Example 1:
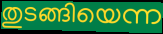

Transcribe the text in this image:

തുടങ്ങിയെന്ന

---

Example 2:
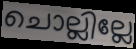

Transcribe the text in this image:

ചൊല്ലില്ലേ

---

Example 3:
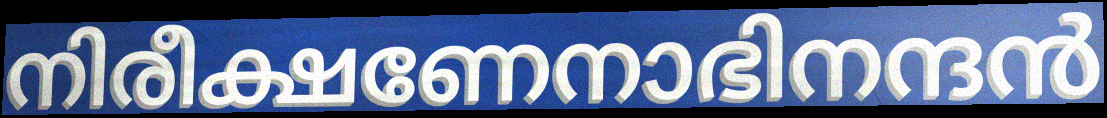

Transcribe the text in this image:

നിരീക്ഷണേനാഭിനന്ദൻ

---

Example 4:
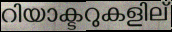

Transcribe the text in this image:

റിയാക്ടറുകളില്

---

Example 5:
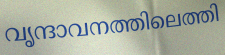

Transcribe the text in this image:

വൃന്ദാവനത്തിലെത്തി